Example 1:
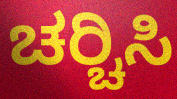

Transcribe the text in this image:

ಚರ‍್ಚಿಸಿ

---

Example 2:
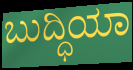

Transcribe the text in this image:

ಬುದ್ಧಿಯಾ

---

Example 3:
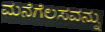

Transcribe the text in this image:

ಮನೆಗೆಲಸವನ್ನು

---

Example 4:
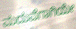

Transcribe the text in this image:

ಮದುವೆಗಾಗಿಯೇ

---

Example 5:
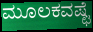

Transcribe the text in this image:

ಮೂಲಕವಷ್ಟೆ